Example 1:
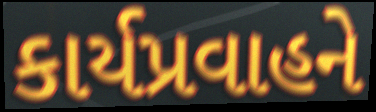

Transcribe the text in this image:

કાર્યપ્રવાહને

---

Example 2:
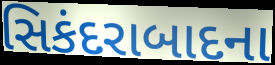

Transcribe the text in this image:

સિકંદરાબાદના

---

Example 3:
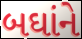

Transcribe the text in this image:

બઘાંને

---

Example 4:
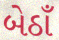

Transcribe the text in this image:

બેઠાઁ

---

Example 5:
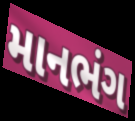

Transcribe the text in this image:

માનભંગ